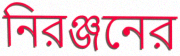
নিরঞ্জনের